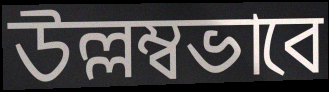
উল্লম্বভাবে